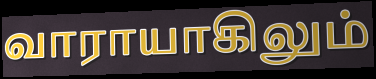
வாராயாகிலும்